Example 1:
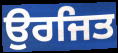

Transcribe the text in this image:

ਉਰਜਿਤ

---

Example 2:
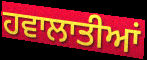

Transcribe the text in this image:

ਹਵਾਲਾਤੀਆਂ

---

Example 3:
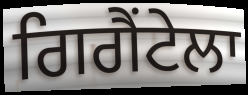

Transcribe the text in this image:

ਗਿਗੈਂਟੇਲਾ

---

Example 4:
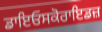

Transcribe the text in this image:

ਡਾਇਓਸਕੋਰਾਇਡਜ਼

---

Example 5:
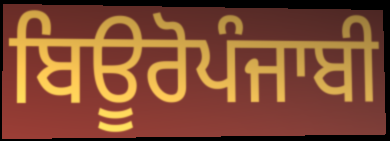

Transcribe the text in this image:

ਬਿਊਰੋਪੰਜਾਬੀ